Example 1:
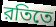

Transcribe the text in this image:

রতিতে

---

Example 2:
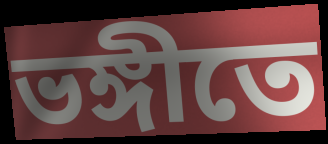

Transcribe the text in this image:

ভঙ্গীতে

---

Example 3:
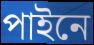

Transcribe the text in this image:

পাইনে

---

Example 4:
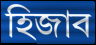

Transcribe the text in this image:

হিজাব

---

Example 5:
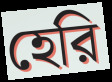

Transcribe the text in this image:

হেরি